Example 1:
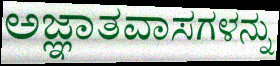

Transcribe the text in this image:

ಅಜ್ಞಾತವಾಸಗಳನ್ನು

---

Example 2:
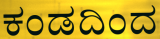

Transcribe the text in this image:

ಕಂಡದಿಂದ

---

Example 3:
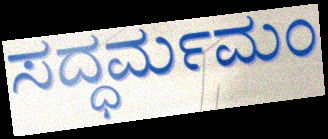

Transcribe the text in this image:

ಸದ್ಧರ್ಮಮಂ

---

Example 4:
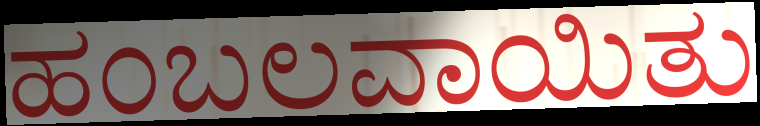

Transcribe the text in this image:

ಹಂಬಲವಾಯಿತು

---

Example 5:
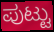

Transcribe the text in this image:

ಪುಟ್ಟು